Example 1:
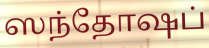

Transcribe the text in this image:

ஸந்தோஷப்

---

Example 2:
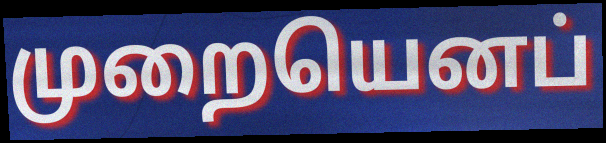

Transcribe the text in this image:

முறையெனப்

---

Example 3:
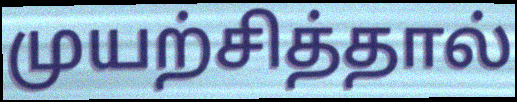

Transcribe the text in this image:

முயற்சித்தால்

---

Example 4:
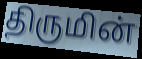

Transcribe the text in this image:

திருமின்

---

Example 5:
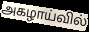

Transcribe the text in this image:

அகழாய்வில்